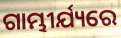
ଗାମ୍ଭୀର୍ଯ୍ୟରେ